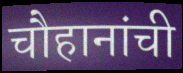
चौहानांची